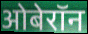
ओबेरॉन